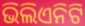
ଭିଲିଏନିଟି